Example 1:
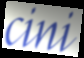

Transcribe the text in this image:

cini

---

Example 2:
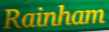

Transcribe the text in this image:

Rainham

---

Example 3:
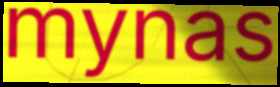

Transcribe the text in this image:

mynas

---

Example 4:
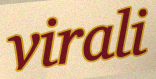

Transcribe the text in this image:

virali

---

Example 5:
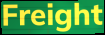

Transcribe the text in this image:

Freight